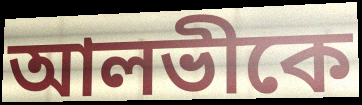
আলভীকে